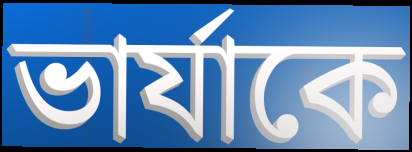
ভার্যাকে